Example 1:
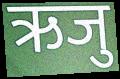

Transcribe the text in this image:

ऋजु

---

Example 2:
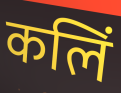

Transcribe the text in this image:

कलिं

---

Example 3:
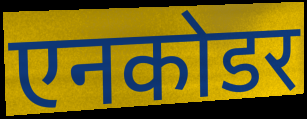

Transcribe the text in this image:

एनकोडर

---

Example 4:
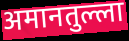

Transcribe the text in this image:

अमानतुल्ला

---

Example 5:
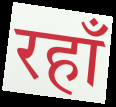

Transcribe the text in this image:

रहाँ